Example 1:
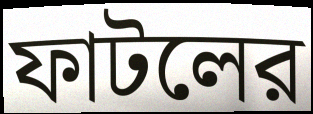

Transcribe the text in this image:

ফাটলের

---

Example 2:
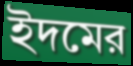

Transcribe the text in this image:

ইদমের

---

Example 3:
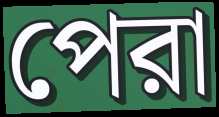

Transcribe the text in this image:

পেরা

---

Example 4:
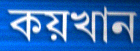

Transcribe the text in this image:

কয়খান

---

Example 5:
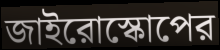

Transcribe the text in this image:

জাইরোস্কোপের